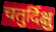
चतुर्दिक्षु